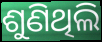
ଶୁଣିଥିଲି